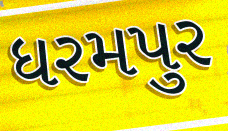
ધરમપુર